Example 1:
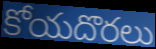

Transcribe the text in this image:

కోయదొరలు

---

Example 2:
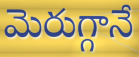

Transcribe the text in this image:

మెరుగ్గానే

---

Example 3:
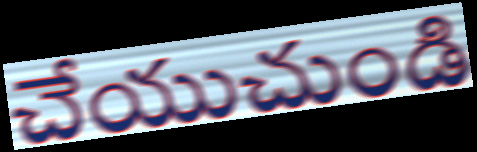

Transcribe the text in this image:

చేయుచుండి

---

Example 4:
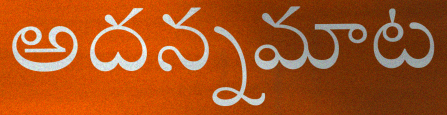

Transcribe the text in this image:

అదన్నమాట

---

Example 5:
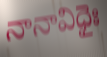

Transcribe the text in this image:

నానావిధైః